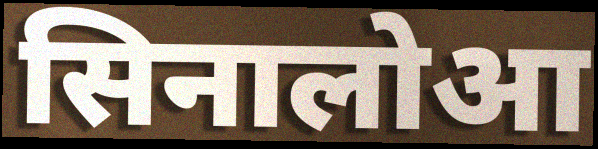
सिनालोआ